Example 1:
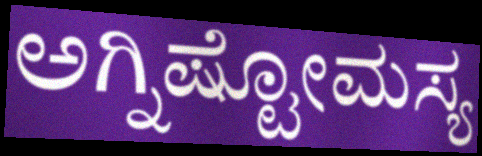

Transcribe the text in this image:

ಅಗ್ನಿಷ್ಟೋಮಸ್ಯ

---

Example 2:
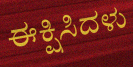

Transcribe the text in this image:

ಈಕ್ಷಿಸಿದಳು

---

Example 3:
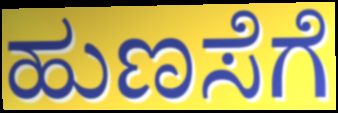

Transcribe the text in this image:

ಹುಣಸೆಗೆ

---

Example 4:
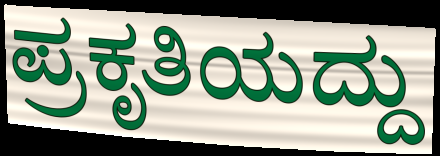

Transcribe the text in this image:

ಪ್ರಕೃತಿಯದ್ದು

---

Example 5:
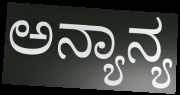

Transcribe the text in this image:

ಅನ್ಯಾನ್ಯ